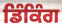
ਡਿੰਕਿੰਗ